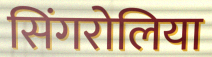
सिंगरोलिया